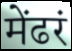
मेंढरं